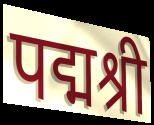
पद्मश्री